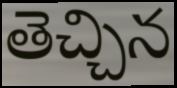
తెచ్చిన